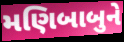
મણિબાબુને